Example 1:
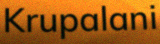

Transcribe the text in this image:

Krupalani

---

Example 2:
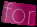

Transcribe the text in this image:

for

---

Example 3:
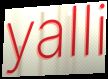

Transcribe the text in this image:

yalli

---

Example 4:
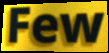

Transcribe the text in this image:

Few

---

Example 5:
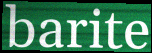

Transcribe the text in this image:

barite